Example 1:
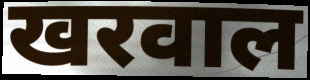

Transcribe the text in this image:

खरवाल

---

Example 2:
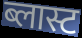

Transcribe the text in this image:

ब्लास्ट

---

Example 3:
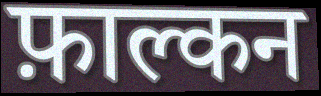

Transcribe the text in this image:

फ़ाल्कन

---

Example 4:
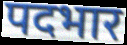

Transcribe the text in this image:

पदभार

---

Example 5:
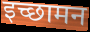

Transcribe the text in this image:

इच्छामन